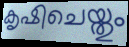
കൃഷിചെയ്തും